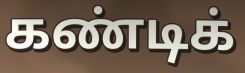
கண்டிக்